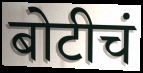
बोटीचं